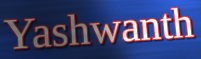
Yashwanth